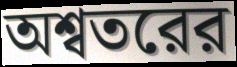
অশ্বতরের